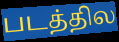
படத்தில